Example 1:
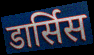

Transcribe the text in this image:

डार्सिस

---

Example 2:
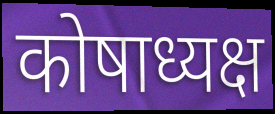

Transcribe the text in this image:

कोषाध्यक्ष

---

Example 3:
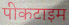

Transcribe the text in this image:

पीकटाइम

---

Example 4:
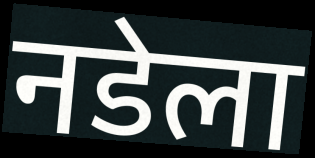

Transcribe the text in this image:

नडेला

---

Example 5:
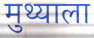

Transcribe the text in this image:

मुथ्याला